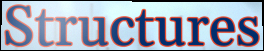
Structures